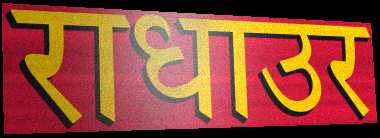
राधाउर